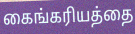
கைங்கரியத்தை